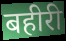
बहीरी